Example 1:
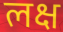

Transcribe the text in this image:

लक्ष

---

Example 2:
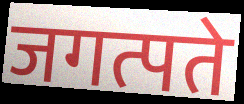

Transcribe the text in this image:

जगत्पते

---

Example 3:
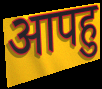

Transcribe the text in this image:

आपहु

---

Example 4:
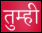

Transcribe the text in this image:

तुम्ही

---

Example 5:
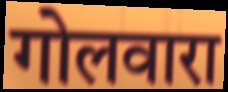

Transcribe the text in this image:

गोलवारा